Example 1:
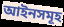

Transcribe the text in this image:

আইনসমূহ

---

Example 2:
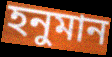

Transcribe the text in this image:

হনুমান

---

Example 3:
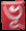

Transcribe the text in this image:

ভূ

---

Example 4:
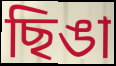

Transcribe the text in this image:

ছিঙা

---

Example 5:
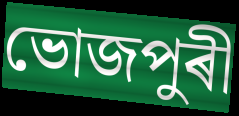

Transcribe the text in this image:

ভোজপুৰী